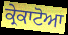
ਕ੍ਰੇਕਾਟੋਆ